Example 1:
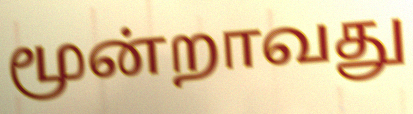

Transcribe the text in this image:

மூன்றாவது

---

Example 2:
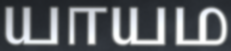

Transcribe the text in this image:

யாயம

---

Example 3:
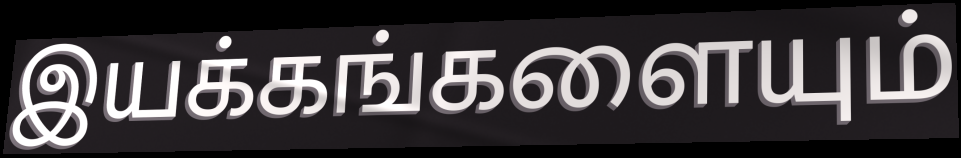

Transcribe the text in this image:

இயக்கங்களையும்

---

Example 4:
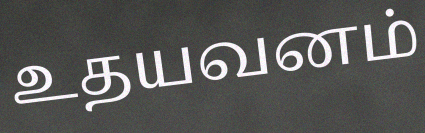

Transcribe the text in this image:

உதயவனம்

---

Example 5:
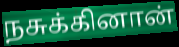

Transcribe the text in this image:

நசுக்கினான்